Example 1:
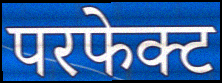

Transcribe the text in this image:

परफेक्ट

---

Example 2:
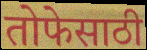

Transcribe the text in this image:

तोफेसाठी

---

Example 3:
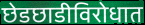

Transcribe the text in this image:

छेडछाडीविरोधात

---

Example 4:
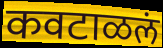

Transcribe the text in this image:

कवटाळलं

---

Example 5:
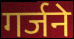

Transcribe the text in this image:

गर्जने